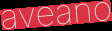
aveano